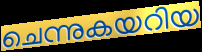
ചെന്നുകയറിയ